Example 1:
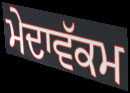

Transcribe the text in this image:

ਮੇਦਾਵੱਕਮ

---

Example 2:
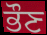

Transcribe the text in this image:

ਭੌਣ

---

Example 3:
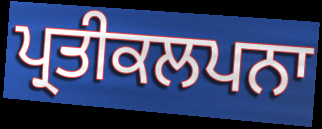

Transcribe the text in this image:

ਪ੍ਰਤੀਕਲਪਨਾ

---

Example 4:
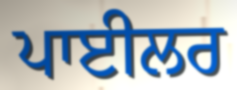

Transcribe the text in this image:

ਪਾਈਲਰ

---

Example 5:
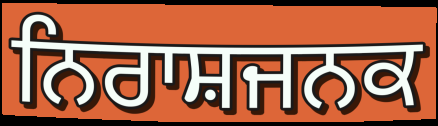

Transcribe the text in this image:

ਨਿਰਾਸ਼ਜਨਕ